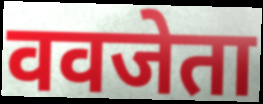
ववजेता